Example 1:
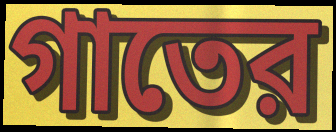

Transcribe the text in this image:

গাতের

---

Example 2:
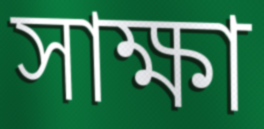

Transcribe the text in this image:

সাক্ষা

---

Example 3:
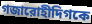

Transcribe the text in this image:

গজারোহীদিগকে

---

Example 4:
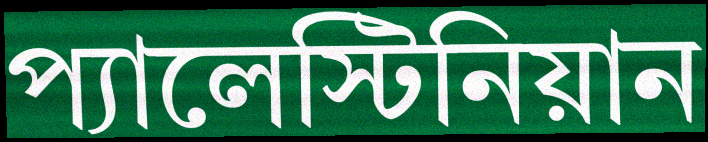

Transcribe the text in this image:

প্যালেস্টিনিয়ান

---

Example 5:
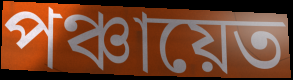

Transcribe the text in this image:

পঞ্চায়েত